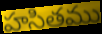
హసితము